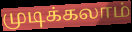
முடிக்கலாம்